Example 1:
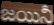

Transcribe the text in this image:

జయినీ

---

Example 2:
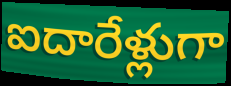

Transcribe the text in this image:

ఐదారేళ్లుగా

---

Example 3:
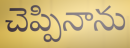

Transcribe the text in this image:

చెప్పినాను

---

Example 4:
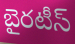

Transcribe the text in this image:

బైరటీస్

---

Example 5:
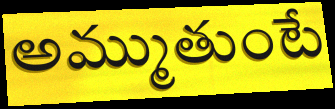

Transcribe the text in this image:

అమ్ముతుంటే